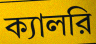
ক্যালরি